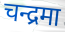
चन्द्रमा